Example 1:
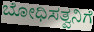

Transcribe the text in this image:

ಬೋಧಿಸತ್ವನಿಗೆ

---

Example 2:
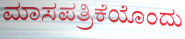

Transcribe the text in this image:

ಮಾಸಪತ್ರಿಕೆಯೊಂದು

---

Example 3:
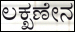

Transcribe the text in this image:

ಲಕ್ಖಣೇನ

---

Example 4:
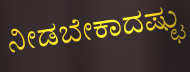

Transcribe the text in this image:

ನೀಡಬೇಕಾದಷ್ಟು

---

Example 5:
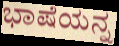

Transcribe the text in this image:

ಭಾಷೆಯನ್ನ